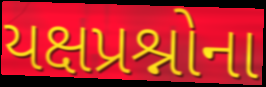
યક્ષપ્રશ્નોના